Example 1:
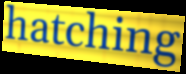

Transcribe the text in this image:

hatching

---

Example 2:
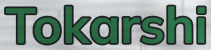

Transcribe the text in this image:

Tokarshi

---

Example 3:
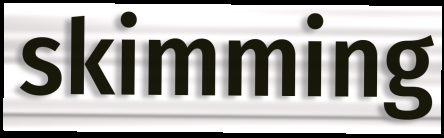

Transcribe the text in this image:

skimming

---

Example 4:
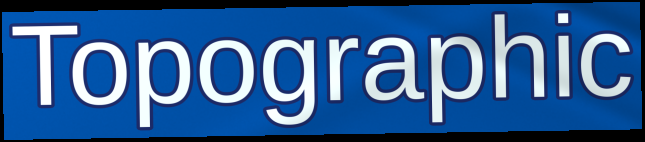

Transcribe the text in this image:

Topographic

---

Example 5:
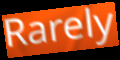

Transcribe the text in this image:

Rarely